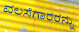
ವಲಸೆಗಾರರನ್ನು